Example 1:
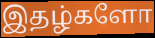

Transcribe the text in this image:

இதழ்களோ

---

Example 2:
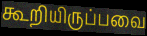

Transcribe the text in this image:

கூறியிருப்பவை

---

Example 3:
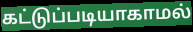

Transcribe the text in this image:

கட்டுப்படியாகாமல்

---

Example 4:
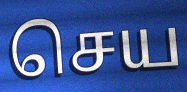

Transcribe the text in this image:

செய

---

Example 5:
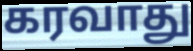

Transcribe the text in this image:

கரவாது